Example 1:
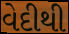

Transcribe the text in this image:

વેદીથી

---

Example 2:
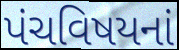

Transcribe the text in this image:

પંચવિષયનાં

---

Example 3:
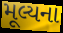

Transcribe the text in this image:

મૂલ્યના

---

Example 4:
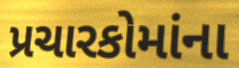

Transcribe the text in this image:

પ્રચારકોમાંના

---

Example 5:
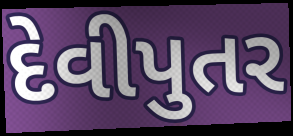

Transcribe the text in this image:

દેવીપુતર